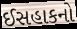
ઈસહાકનો